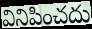
వినిపించదు